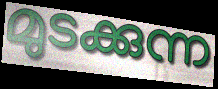
മുടക്കുന്ന